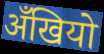
अँखियो